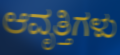
ಆವೃತ್ತಿಗಳು